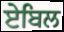
ਏਬਿਲ